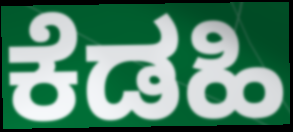
ಕೆಡಹಿ